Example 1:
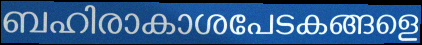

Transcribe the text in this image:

ബഹിരാകാശപേടകങ്ങളെ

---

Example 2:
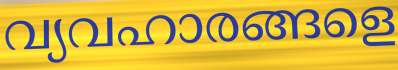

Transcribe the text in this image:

വ്യവഹാരങ്ങളെ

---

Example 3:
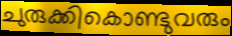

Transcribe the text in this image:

ചുരുക്കികൊണ്ടുവരും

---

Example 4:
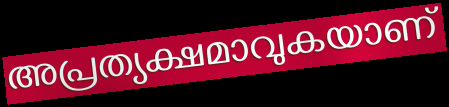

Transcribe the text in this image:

അപ്രത്യക്ഷമാവുകയാണ്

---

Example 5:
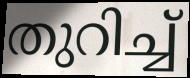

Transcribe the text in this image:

തുറിച്ച്